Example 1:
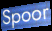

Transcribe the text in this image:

Spoor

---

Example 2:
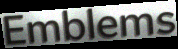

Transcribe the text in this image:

Emblems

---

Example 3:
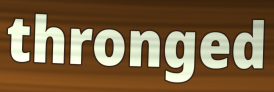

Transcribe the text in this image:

thronged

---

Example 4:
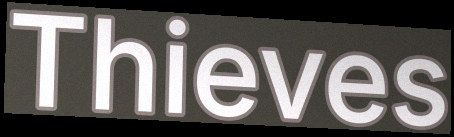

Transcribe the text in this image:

Thieves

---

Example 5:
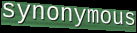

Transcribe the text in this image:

synonymous